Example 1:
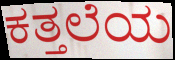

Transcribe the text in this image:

ಕತ್ತಲೆಯ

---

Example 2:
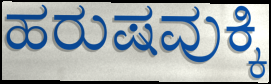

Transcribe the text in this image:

ಹರುಷವುಕ್ಕಿ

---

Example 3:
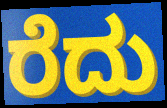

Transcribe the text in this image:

ರೆದು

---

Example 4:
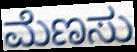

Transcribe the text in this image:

ಮೆಣಸು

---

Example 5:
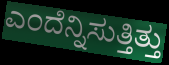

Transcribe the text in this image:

ಎಂದೆನ್ನಿಸುತ್ತಿತ್ತು